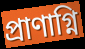
প্রাণাগ্নি